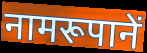
नामरूपानें